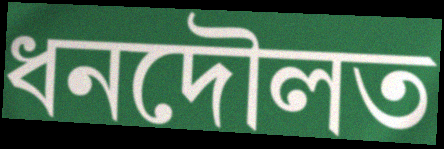
ধনদৌলত